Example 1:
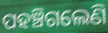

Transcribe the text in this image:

ପହଞ୍ଚିଗଲେଣି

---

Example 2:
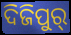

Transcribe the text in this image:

ଦିଜିପୁର୍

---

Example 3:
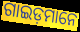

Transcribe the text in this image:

ଗାଇଡ଼ମାନେ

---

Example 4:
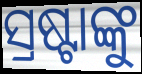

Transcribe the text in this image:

ସ୍ରଷ୍ଟାଙ୍କୁ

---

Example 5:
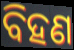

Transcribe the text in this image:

ବିହଣ